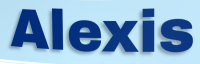
Alexis